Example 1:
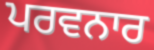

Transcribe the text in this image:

ਪਰਵਨਾਰ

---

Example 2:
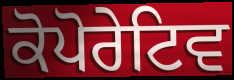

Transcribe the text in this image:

ਕੋਪੋਰੇਟਿਵ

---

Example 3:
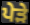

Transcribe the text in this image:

ਪੇੜੇ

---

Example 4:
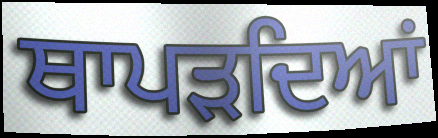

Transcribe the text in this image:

ਥਾਪੜਦਿਆਂ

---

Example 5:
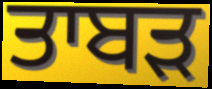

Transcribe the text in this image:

ਤਾਬੜ